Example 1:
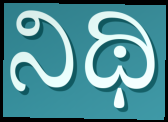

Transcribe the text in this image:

ನಿಥಿ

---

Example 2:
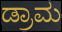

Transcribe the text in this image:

ಡ್ರಾಮ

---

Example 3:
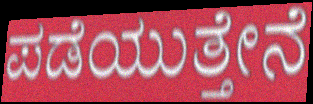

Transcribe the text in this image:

ಪಡೆಯುತ್ತೇನೆ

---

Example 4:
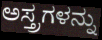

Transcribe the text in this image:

ಅಸ್ತ್ರಗಳನ್ನು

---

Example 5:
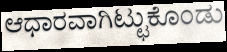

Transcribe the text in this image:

ಆಧಾರವಾಗಿಟ್ಟುಕೊಂಡು